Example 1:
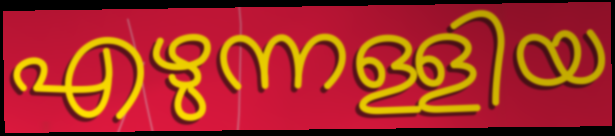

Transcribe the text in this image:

എഴുന്നള്ളിയ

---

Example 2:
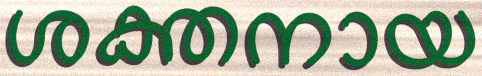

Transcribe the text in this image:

ശക്തനായ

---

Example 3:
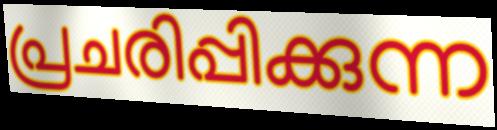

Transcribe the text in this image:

പ്രചരിപ്പിക്കുന്ന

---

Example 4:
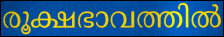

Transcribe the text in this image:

രൂക്ഷഭാവത്തിൽ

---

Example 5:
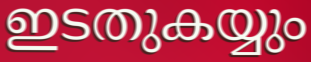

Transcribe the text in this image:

ഇടതുകയ്യും